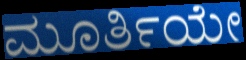
ಮೂರ್ತಿಯೇ